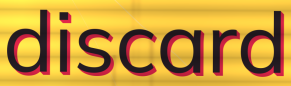
discard